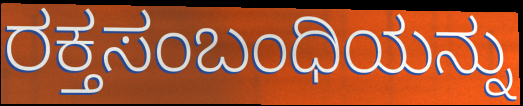
ರಕ್ತಸಂಬಂಧಿಯನ್ನು